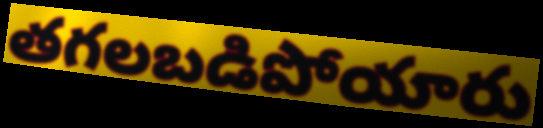
తగలబడిపోయారు